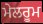
ਮੇਲਰੂਮ